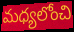
మధ్యలోంచి